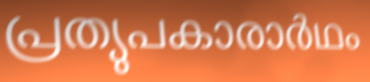
പ്രത്യുപകാരാർഥം